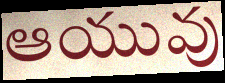
ఆయువు